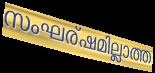
സംഘര്ഷമില്ലാത്ത